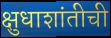
क्षुधाशांतीची